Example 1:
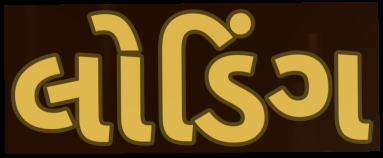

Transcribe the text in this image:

લોડિંગ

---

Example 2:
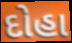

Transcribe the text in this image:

દોહા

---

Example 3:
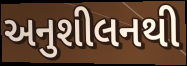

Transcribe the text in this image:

અનુશીલનથી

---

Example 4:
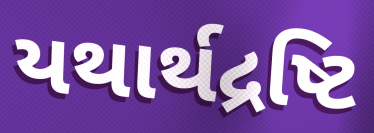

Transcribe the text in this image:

યથાર્થદ્રષ્ટિ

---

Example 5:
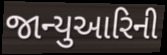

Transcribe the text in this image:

જાન્યુઆરિની